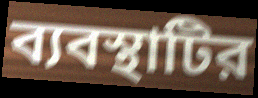
ব্যবস্থাটির